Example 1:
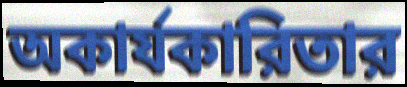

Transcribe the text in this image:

অকার্যকারিতার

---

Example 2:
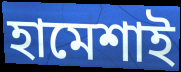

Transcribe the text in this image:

হামেশাই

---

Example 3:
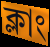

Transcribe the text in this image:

ক্লাং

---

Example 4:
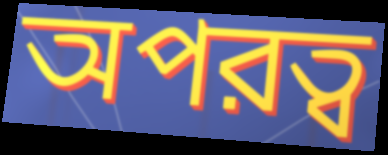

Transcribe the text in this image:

অপরত্ব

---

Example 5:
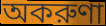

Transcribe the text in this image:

অকরুণা